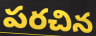
పరచిన